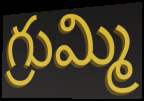
గ్రుమ్మి